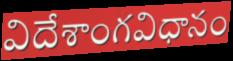
విదేశాంగవిధానం